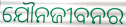
ଯୌନଜୀବନର